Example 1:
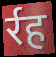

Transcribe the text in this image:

र्रह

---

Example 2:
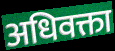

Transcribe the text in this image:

अधिवक्ता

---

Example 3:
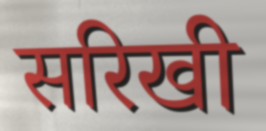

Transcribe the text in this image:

सरिखी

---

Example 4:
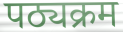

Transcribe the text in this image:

पठ्यक्रम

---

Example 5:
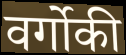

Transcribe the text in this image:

वर्गोकी